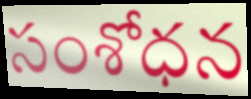
సంశోధన